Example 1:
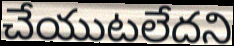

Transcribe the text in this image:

చేయుటలేదని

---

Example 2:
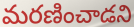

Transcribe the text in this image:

మరణించాడని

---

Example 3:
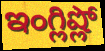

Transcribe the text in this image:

ఇంగ్లిష్లో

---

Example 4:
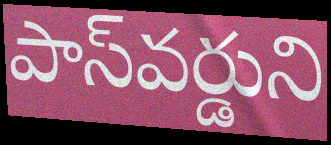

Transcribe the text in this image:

పాస్‌వర్డుని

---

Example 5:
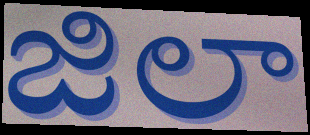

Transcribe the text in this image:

జిలా